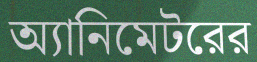
অ্যানিমেটরের